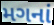
મગનાં